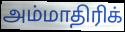
அம்மாதிரிக்